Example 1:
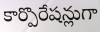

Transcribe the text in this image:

కార్పొరేషన్లుగా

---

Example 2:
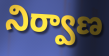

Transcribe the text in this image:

నిర్వాణ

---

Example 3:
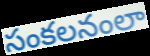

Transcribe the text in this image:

సంకలనంలా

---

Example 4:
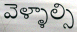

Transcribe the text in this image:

వెళ్ళాల్సి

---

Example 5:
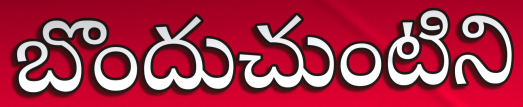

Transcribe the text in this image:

బొందుచుంటిని